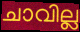
ചാവില്ല